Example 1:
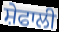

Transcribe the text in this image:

ਸ਼ੇਫਾਲੀ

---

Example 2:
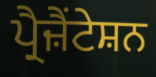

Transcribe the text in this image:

ਪ੍ਰੈਜ਼ੈਂਟੇਸ਼ਨ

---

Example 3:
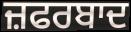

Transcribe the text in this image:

ਜ਼ਫਰਬਾਦ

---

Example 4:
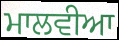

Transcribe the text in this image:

ਮਾਲਵੀਆ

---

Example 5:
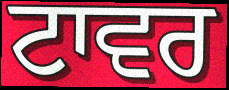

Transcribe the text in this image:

ਟਾਵਰ